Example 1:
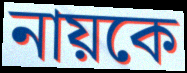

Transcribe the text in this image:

নায়কে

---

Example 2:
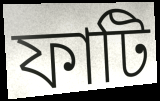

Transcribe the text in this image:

ফাটি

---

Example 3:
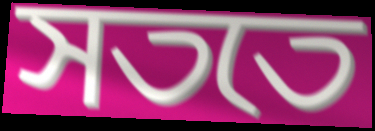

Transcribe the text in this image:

সততে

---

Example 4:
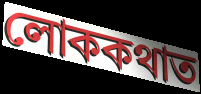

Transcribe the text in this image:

লোককথাত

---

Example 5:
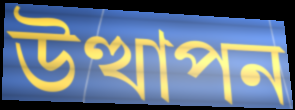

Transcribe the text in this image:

উত্থাপন